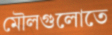
মৌলগুলোতে